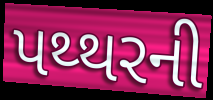
પથ્થરની